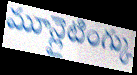
మూన్లైటింగ్కు